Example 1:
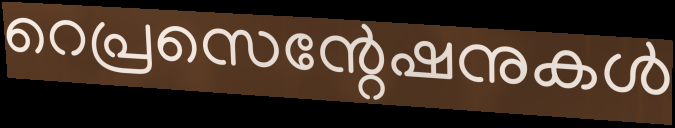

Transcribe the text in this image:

റെപ്രസെന്റേഷനുകൾ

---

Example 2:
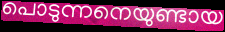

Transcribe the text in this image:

പൊടുന്നനെയുണ്ടായ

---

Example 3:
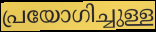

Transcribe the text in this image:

പ്രയോഗിച്ചുള്ള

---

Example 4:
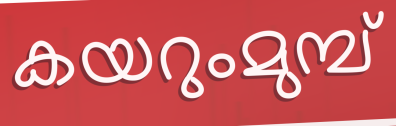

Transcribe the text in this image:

കയറുംമുമ്പ്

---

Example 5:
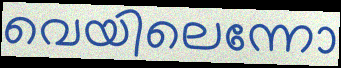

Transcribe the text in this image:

വെയിലെന്നോ